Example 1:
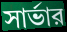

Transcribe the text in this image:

সার্ভার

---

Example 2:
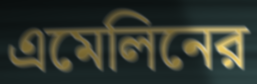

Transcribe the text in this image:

এমেলিনের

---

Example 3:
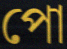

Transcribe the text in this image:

পো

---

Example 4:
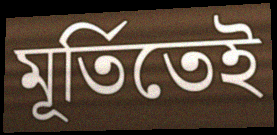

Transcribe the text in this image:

মূর্তিতেই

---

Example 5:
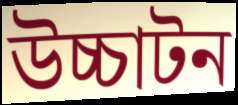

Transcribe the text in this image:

উচ্চাটন